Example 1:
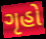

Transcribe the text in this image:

ગૃહો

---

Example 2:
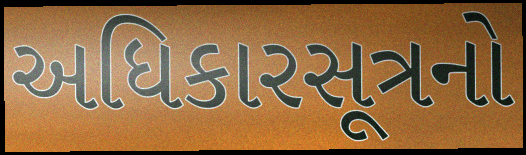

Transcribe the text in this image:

અધિકારસૂત્રનો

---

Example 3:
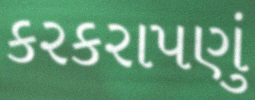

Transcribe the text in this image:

કરકરાપણું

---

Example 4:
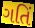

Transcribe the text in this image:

ગતિં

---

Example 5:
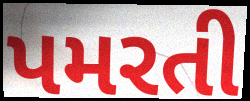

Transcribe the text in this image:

પમરતી